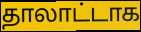
தாலாட்டாக